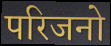
परिजनो